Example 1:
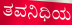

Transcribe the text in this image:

ತವನಿಧಿಯ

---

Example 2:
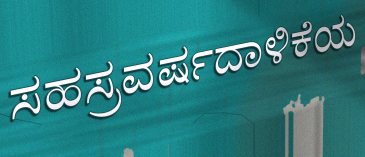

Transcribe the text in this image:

ಸಹಸ್ರವರ್ಷದಾಳಿಕೆಯ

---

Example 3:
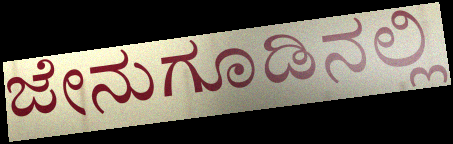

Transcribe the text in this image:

ಜೇನುಗೂಡಿನಲ್ಲಿ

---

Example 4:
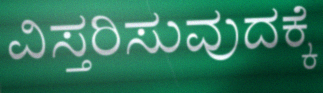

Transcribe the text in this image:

ವಿಸ್ತರಿಸುವುದಕ್ಕೆ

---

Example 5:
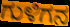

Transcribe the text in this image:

ಗುಳಿಗನ